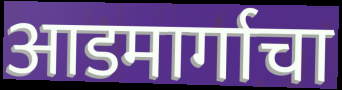
आडमार्गाचा